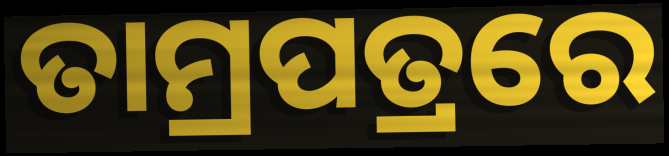
ତାମ୍ରପତ୍ରରେ